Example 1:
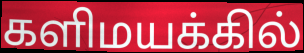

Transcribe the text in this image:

களிமயக்கில்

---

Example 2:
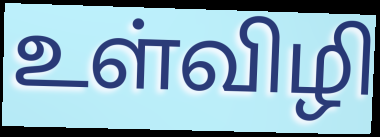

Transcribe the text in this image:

உள்விழி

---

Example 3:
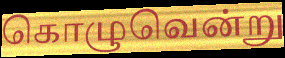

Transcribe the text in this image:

கொழுவென்று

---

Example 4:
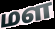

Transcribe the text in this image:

மள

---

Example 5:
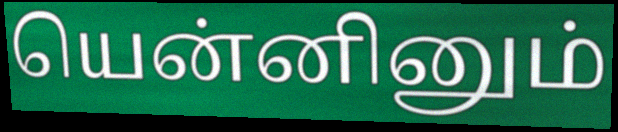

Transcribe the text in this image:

யென்னினும்